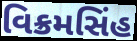
વિક્રમસિંહ